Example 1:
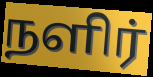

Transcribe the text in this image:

நளிர்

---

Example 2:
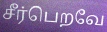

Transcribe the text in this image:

சீர்பெறவே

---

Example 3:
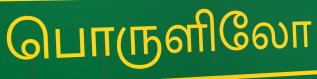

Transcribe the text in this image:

பொருளிலோ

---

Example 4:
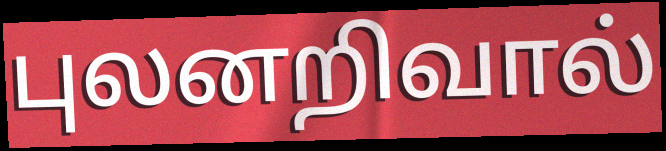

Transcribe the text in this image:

புலனறிவால்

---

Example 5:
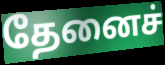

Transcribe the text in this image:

தேனைச்